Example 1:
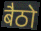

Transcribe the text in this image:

बैठो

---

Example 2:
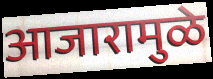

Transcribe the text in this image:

आजारामुळे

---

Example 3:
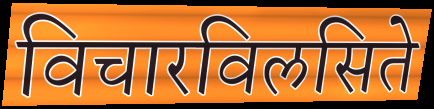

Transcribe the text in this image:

विचारविलसिते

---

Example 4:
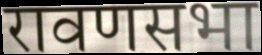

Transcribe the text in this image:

रावणसभा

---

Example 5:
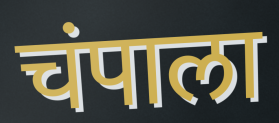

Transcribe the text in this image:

चंपाला